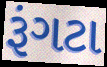
રૂંગટા